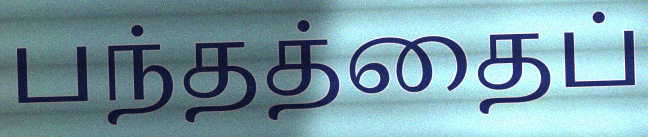
பந்தத்தைப்